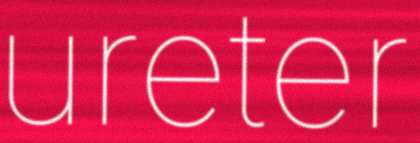
ureter